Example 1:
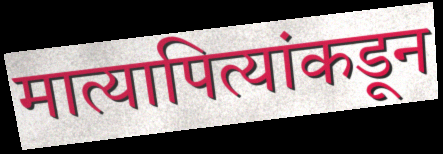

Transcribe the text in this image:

मात्यापित्यांकडून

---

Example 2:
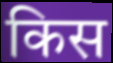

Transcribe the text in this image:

किस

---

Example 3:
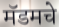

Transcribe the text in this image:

मॅडमचे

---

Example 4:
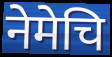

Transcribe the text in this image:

नेमेचि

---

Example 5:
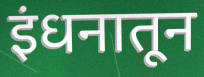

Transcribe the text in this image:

इंधनातून